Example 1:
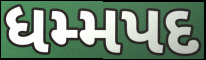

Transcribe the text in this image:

ધમ્મપદ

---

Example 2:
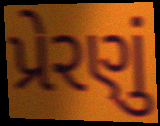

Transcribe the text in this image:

પ્રેરણું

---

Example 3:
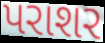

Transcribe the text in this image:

પરાશર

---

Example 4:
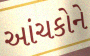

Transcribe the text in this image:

આંચકોને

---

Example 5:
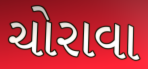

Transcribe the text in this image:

ચોરાવા